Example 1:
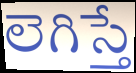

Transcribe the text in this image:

లెగిస్తే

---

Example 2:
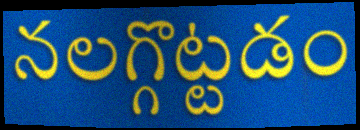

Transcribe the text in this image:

నలగ్గొట్టడం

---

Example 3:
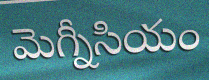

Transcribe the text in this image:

మెగ్నీసియం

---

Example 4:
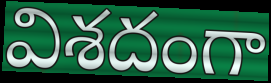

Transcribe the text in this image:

విశదంగా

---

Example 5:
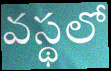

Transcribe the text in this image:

వస్థలో